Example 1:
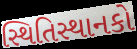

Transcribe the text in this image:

સ્થિતિસ્થાનકો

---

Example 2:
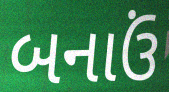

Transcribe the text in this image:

બનાઉં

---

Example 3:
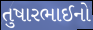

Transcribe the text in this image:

તુષારભાઈનો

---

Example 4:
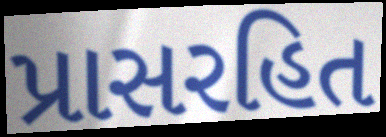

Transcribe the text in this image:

પ્રાસરહિત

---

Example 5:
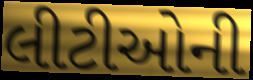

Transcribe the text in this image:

લીટીઓની